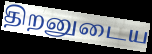
திறனுடைய